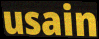
usain